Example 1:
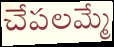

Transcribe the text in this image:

చేపలమ్మే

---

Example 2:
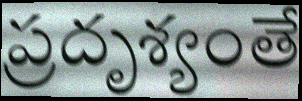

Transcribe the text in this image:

ప్రదృశ్యంతే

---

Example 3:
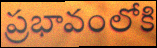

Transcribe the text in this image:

ప్రభావంలోకి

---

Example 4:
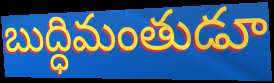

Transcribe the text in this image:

బుద్ధిమంతుడూ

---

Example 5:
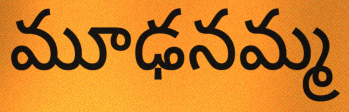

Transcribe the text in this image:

మూఢనమ్మ